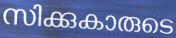
സിക്കുകാരുടെ